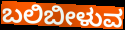
ಬಲಿಬೀಳುವ